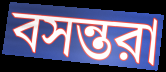
বসন্তরা